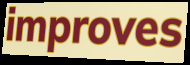
improves